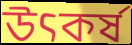
উৎকর্ষ